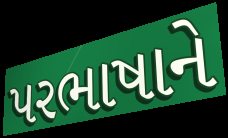
પરભાષાને